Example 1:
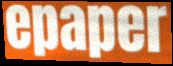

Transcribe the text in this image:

epaper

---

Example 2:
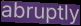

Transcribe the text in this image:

abruptly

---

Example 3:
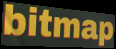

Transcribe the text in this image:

bitmap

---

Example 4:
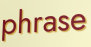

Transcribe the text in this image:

phrase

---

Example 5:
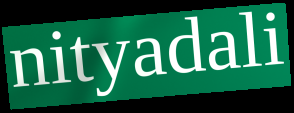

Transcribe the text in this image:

nityadali